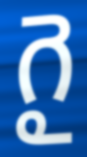
గై